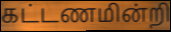
கட்டணமின்றி